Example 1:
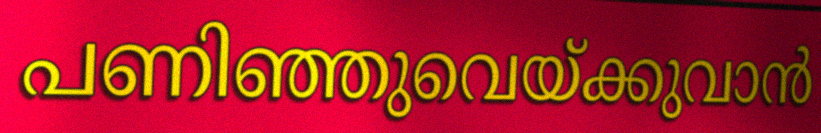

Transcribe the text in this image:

പണിഞ്ഞുവെയ്ക്കുവാൻ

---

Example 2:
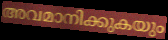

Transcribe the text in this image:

അവമാനിക്കുകയും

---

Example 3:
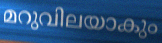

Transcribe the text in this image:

മറുവിലയാകും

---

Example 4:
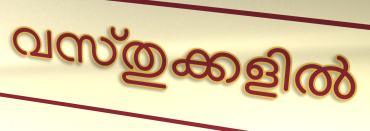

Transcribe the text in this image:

വസ്തുക്കളിൽ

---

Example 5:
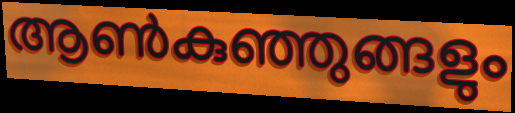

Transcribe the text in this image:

ആൺകുഞ്ഞുങ്ങളും